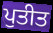
ਪੁਤੀਤ